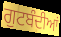
ਗੁਟਬੰਦੀਆਂ